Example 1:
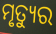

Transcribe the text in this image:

ମୃତ୍ୟୁର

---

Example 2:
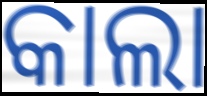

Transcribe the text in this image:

କାଲା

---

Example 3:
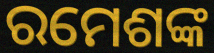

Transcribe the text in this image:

ରମେଶଙ୍କ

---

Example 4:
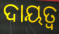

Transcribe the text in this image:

ଦାୟତ୍ବ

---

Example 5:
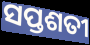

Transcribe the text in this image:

ସପ୍ତଶତୀ